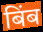
बिंब